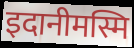
इदानीमस्मि